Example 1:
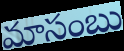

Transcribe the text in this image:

మాసంబు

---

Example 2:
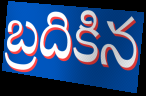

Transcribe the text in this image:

బ్రదికిన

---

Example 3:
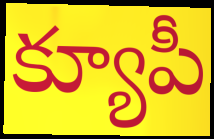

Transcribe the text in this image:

క్యూపీ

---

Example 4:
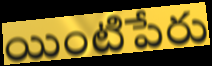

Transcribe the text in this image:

యింటిపేరు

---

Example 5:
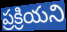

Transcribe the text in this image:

ప్రక్రియని